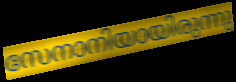
സേനാനിയായിരുന്നു